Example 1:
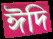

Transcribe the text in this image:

ঈদি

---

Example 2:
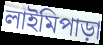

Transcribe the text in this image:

লাইমিপাড়া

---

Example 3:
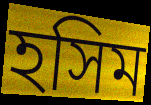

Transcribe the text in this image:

হসিম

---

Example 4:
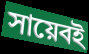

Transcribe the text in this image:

সায়েবই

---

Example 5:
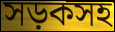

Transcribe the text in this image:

সড়কসহ